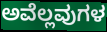
ಅವೆಲ್ಲವುಗಳ